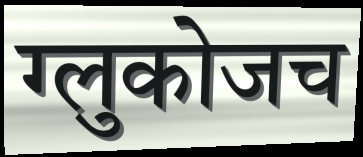
ग्लुकोजच